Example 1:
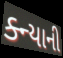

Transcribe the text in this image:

ક્ન્યાની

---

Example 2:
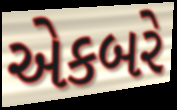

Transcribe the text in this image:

એકબરે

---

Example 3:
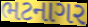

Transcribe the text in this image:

ભટનાગર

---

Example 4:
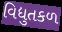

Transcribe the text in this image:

વિદ્યુતકળ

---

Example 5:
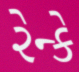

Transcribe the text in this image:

રેન્કે